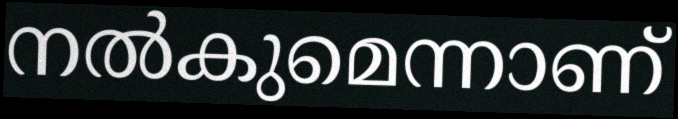
നൽകുമെന്നാണ്